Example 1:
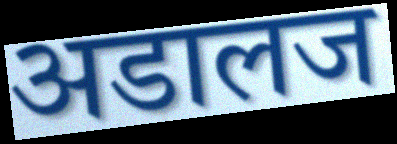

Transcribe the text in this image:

अडालज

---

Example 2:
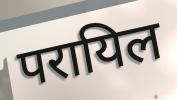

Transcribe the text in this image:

परायिल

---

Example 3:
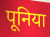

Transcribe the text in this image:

पूनिया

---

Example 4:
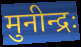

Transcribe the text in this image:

मुनीन्द्रः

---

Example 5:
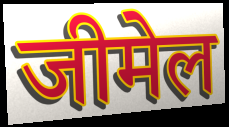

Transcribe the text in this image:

जीमेल